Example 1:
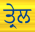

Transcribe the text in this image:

ਤ੍ਰੇਲ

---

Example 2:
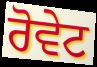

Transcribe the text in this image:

ਰੋਵੇਟ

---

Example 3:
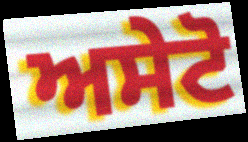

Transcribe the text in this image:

ਅਸੇਟੋ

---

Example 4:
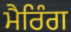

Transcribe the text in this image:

ਮੈਰਿੰਗ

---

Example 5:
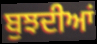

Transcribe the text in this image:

ਬੁਝਦੀਆਂ